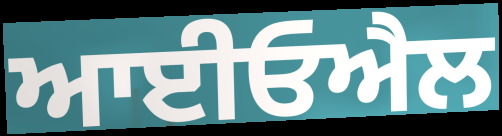
ਆਈਓਐਲ